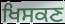
ਖਿਸਕਣ